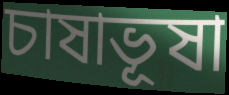
চাষাভূষা